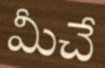
మీచే